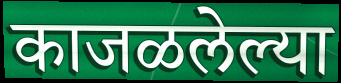
काजळलेल्या